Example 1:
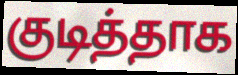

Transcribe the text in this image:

குடித்தாக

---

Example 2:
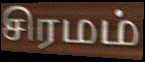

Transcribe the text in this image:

சிரமம்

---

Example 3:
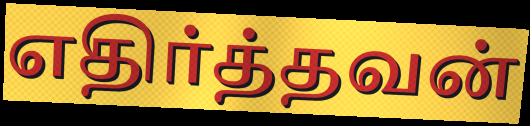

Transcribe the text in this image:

எதிர்த்தவன்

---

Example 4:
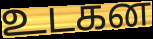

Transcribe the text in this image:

உடகன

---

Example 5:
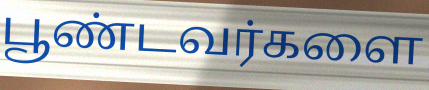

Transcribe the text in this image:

பூண்டவர்களை